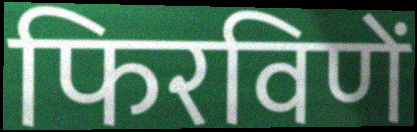
फिरविणें